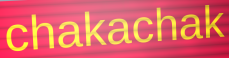
chakachak